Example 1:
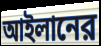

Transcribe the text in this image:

আইলানের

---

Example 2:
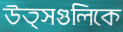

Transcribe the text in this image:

উত্সগুলিকে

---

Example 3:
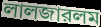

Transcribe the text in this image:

লালজারলম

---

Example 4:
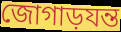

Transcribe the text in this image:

জোগাড়যন্ত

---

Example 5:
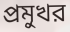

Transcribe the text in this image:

প্রমুখর